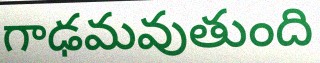
గాఢమవుతుంది